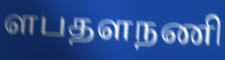
ளபதளநணி